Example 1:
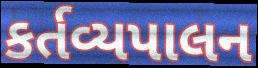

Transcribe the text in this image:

કર્તવ્યપાલન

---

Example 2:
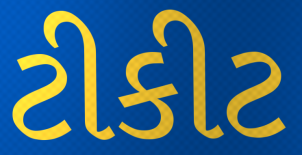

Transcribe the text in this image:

ટીકીટ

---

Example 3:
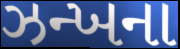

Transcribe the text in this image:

ઝન્ખના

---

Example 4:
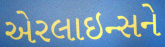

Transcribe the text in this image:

એરલાઇન્સને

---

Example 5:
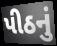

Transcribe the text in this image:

પીઠનું